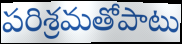
పరిశ్రమతోపాటు